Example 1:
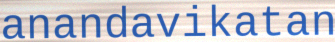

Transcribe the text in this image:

anandavikatan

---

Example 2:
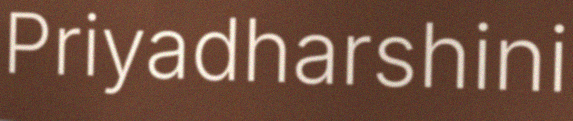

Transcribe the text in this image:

Priyadharshini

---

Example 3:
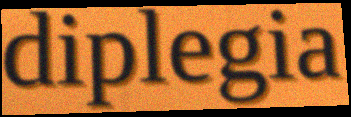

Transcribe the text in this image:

diplegia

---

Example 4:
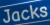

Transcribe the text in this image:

Jacks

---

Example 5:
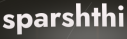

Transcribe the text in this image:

sparshthi